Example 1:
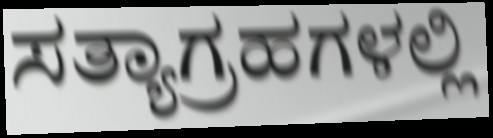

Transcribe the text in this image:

ಸತ್ಯಾಗ್ರಹಗಳಲ್ಲಿ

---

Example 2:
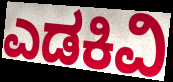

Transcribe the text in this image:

ಎಡಕಿವಿ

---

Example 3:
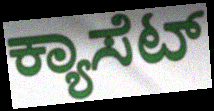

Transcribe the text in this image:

ಕ್ಯಾಸೆಟ್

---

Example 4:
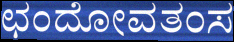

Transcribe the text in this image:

ಛಂದೋವತಂಸ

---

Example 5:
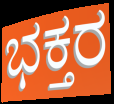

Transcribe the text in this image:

ಭಕ್ತರ